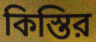
কিস্তির